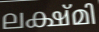
ലക്ഷ്‌മി